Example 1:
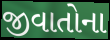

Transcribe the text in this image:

જીવાતોના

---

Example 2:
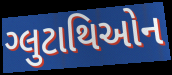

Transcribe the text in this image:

ગ્લુટાથિઓન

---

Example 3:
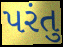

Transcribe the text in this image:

પરંતુ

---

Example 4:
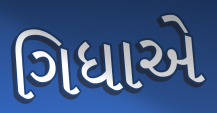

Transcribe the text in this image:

ગિધાએ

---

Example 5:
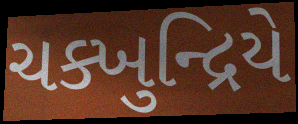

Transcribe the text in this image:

ચક્ખુન્દ્રિયે